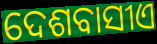
ଦେଶବାସୀଏ